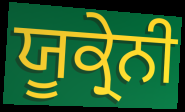
ਯੂਕ੍ਰੇਨੀ